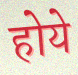
होये